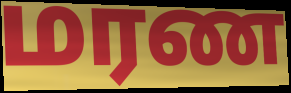
மரண